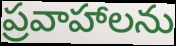
ప్రవాహాలను